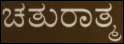
ಚತುರಾತ್ಮ